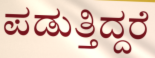
ಪಡುತ್ತಿದ್ದರೆ